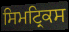
ਸਿਮਟ੍ਰਿਕਸ